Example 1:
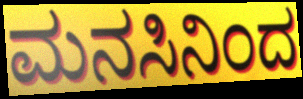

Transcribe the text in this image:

ಮನಸಿನಿಂದ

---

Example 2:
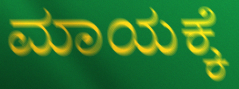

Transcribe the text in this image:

ಮಾಯಕ್ಕೆ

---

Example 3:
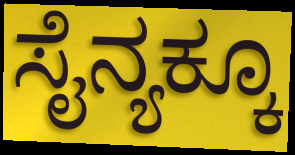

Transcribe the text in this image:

ಸೈನ್ಯಕ್ಕೂ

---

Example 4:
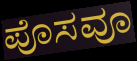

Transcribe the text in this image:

ಪೊಸವೂ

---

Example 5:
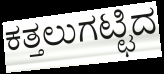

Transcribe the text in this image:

ಕತ್ತಲುಗಟ್ಟಿದ